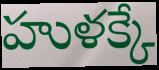
హుళక్కే